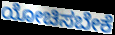
ಯೋಚಿಸಬೇಕೆ